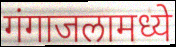
गंगाजलामध्ये